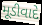
મૂડીવાદે